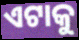
ଏଟାକୁ